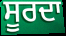
ਸੂਰਦਾ